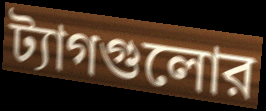
ট্যাগগুলোর